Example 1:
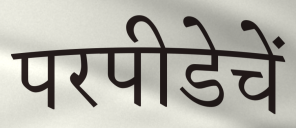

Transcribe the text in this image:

परपीडेचें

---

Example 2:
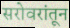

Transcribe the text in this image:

सरोवरांतून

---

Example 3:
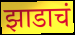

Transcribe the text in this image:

झाडाचं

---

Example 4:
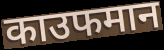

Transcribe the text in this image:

काउफमान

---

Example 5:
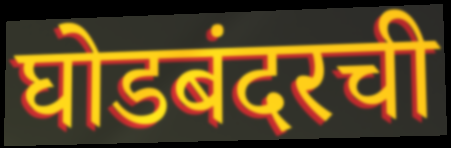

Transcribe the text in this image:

घोडबंदरची